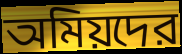
অমিয়দের